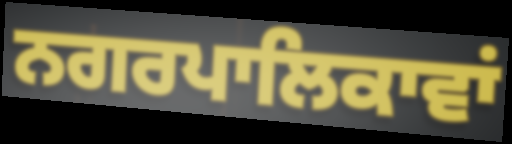
ਨਗਰਪਾਲਿਕਾਵਾਂ